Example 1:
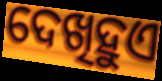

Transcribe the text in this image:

ଦେଖିହୁଏ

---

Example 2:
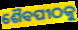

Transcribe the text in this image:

ଶୈବପୀଠକୁ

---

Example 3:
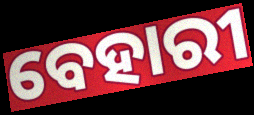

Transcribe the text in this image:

ବେହାରୀ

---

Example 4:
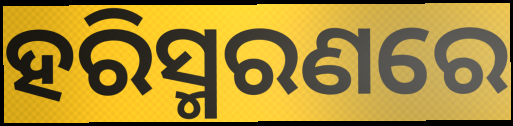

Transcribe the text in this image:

ହରିସ୍ମରଣରେ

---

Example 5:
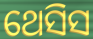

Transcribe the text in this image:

ଥେସିସ